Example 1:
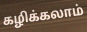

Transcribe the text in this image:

கழிக்கலாம்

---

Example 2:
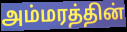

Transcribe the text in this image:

அம்மரத்தின்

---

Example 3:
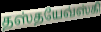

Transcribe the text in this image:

தஸ்தயேவ்ஸ்கி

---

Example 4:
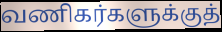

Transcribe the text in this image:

வணிகர்களுக்குத்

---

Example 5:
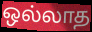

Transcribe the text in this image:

ஒல்லாத